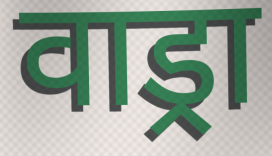
वाड्रा